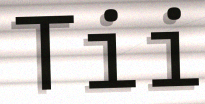
Tii